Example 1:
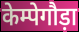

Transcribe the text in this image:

केम्पेगौड़ा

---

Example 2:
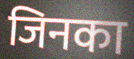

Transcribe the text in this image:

जिनका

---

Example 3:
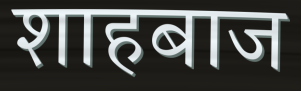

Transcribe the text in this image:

शाहबाज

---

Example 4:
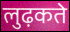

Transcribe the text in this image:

लुढ़कते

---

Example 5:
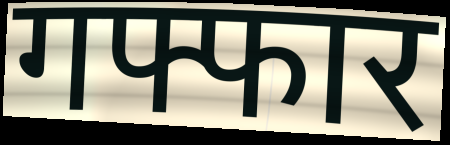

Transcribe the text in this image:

गफ्फार